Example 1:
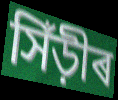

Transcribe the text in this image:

সিঁড়ীৰ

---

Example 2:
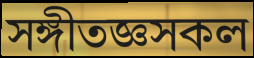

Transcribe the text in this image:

সঙ্গীতজ্ঞসকল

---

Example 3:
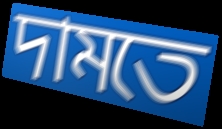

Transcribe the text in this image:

দামতে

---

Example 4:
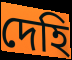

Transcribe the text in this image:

দেহি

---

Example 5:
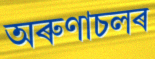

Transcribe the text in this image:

অৰুণাচলৰ